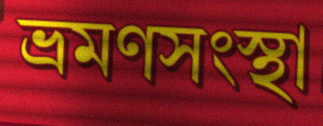
ভ্রমণসংস্থা